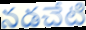
నడచేటి